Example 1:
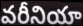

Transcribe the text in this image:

వరీనియా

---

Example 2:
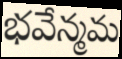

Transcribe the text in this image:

భవేన్మమ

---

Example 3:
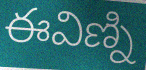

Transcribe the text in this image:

ఈవిణ్ని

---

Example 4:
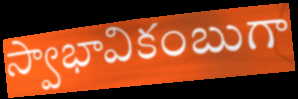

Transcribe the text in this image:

స్వాభావికంబుగా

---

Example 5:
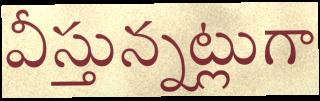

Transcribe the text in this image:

వీస్తున్నట్లుగా